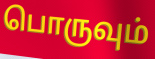
பொருவும்